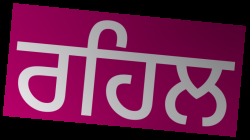
ਰਹਿਲ